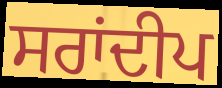
ਸਰਾਂਦੀਪ